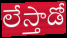
లేస్తాడో